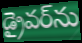
డ్రైవర్‌ను